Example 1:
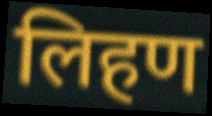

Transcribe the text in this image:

लिहण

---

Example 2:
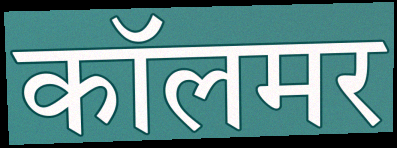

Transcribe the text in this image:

कॉलमर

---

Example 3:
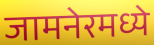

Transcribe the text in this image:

जामनेरमध्ये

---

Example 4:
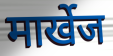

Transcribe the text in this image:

मार्खेज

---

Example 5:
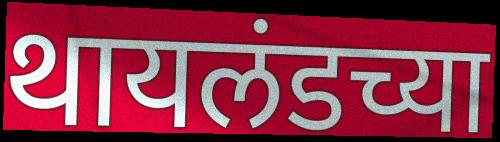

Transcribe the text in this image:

थायलंडच्या